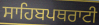
ਸਾਹਿਬਪਥਰਾਟੀ